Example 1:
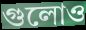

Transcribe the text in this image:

গুলোও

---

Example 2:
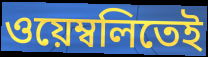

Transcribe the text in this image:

ওয়েম্বলিতেই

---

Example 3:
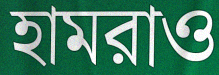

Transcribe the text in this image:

হামরাও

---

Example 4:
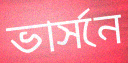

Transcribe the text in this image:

ভার্সনে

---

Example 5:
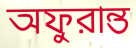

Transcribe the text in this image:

অফুরান্ত